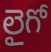
లైగో